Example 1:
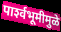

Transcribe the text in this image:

पार्श्‍वभूमीमुळे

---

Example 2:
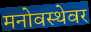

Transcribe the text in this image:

मनोवस्थेवर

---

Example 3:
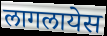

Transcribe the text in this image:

लागलायेस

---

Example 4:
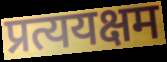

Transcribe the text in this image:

प्रत्ययक्षम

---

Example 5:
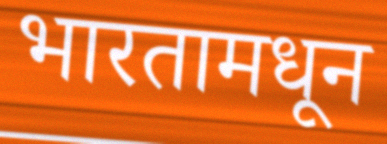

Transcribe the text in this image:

भारतामधून